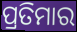
ପ୍ରତିମାର